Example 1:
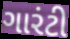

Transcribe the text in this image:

ગારંટી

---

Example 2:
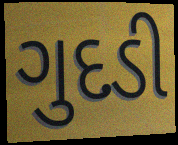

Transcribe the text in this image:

ગુદડી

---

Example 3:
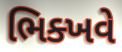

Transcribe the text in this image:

ભિક્ખવે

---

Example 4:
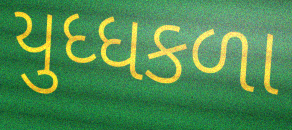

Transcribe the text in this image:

યુધ્ધકળા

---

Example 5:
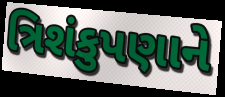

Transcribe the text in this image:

ત્રિશંકુપણાને